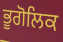
ਭੂਗੋਲਿਕ